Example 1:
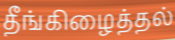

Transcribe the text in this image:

தீங்கிழைத்தல்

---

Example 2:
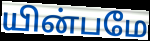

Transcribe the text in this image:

யின்பமே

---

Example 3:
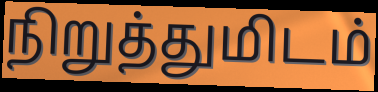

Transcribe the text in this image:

நிறுத்துமிடம்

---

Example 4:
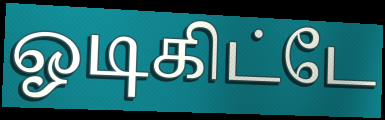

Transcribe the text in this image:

ஓடிகிட்டே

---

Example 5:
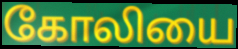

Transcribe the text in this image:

கோலியை